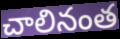
చాలినంత